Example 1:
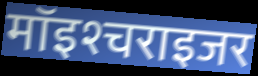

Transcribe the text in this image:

मॉइश्चराइजर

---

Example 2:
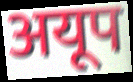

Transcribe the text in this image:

अयूप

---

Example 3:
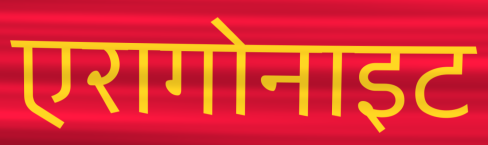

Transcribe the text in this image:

एरागोनाइट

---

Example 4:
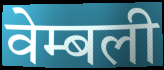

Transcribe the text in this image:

वेम्बली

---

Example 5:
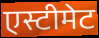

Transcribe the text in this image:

एस्टीमेट